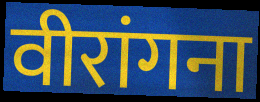
वीरांगना